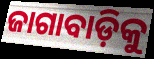
ଜାଗାବାଡ଼ିକୁ